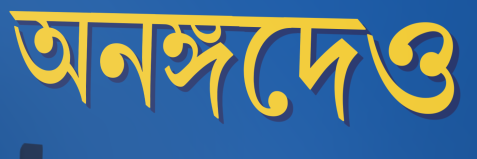
অনঙ্গদেও